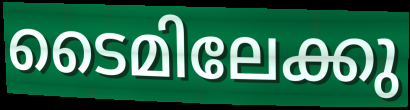
ടൈമിലേക്കു